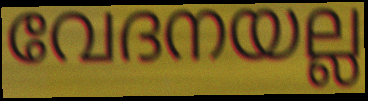
വേദനയല്ല